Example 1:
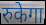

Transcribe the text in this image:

रुकेगा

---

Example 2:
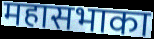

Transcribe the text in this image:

महासभाका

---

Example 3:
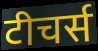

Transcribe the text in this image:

टीचर्स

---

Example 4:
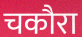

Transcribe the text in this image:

चकौरा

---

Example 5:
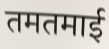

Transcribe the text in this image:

तमतमाई